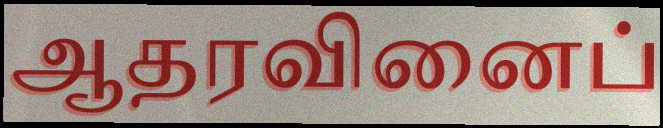
ஆதரவினைப்